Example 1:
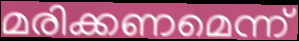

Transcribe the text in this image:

മരിക്കണമെന്ന്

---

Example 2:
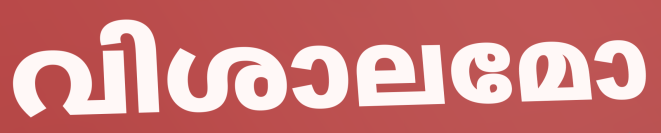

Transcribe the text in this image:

വിശാലമോ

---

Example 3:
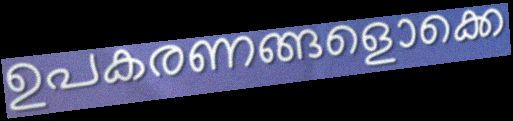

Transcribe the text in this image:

ഉപകരണങ്ങളൊക്കെ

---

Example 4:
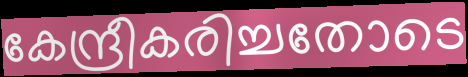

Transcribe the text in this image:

കേന്ദ്രീകരിച്ചതോടെ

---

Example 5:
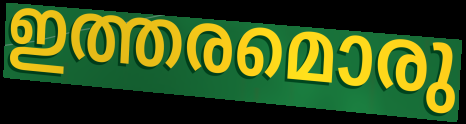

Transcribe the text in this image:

ഇത്തരമൊരു